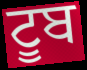
ਟੂਬ